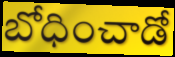
బోధించాడో